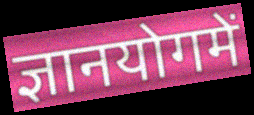
ज्ञानयोगमें